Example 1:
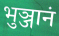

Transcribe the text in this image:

भुञ्जानं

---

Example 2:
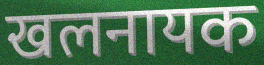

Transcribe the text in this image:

खलनायक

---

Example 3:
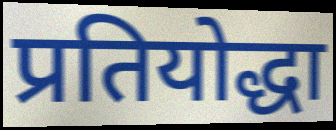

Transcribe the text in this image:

प्रतियोद्धा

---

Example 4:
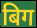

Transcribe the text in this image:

बिग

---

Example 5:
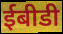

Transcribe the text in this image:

ईबीडी